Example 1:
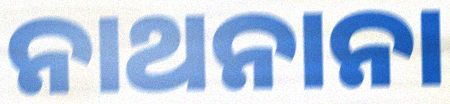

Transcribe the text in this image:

ନାଥନାନା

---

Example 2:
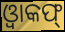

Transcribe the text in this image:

ଓ୍ଵାକଫ୍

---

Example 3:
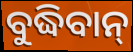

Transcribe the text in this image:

ବୁଦ୍ଧିବାନ୍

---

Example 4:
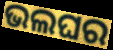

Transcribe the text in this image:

ଭଲଘର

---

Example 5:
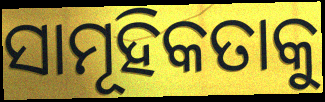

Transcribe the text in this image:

ସାମୂହିକତାକୁ